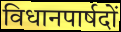
विधानपार्षदों